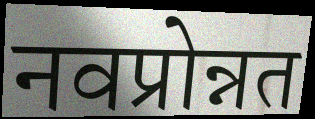
नवप्रोन्नत